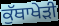
ਕੁੱਥਾਖੇੜੀ